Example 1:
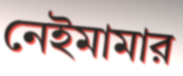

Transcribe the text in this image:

নেইমামার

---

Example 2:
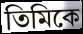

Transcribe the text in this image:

তিমিকে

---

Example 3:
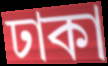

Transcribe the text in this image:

ঢাকা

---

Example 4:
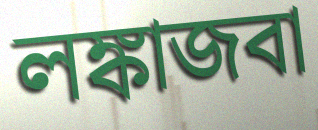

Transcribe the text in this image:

লঙ্কাজবা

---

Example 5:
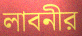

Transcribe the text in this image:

লাবনীর